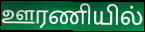
ஊரணியில்